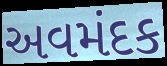
અવમંદક